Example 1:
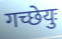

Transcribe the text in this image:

गच्छेयुः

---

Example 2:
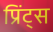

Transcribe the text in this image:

प्रिंट्स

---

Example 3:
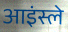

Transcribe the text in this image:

आइंस्ले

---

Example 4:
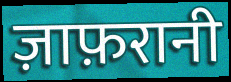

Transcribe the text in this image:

ज़ाफ़रानी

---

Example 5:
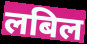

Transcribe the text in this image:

लबिल